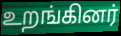
உறங்கினர்